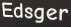
Edsger